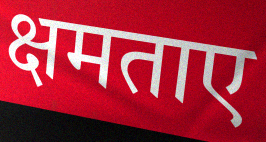
क्षमताए